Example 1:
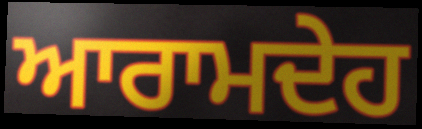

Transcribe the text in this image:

ਆਰਾਮਦੇਹ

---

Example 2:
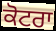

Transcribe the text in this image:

ਕੋਟਰਾ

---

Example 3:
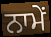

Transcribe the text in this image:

ਨਾਮੇਂ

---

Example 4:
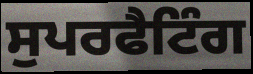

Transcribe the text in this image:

ਸੁਪਰਫੈਟਿੰਗ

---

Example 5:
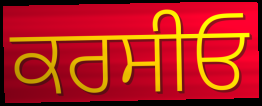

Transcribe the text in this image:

ਕਰਸੀਓ